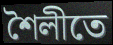
শৈলীতে